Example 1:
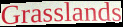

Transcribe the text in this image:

Grasslands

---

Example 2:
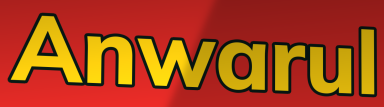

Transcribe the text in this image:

Anwarul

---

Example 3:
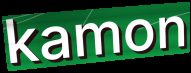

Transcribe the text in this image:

kamon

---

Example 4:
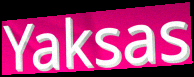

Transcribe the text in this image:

Yaksas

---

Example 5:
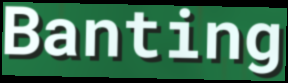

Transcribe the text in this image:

Banting